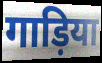
गाड़िया